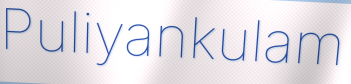
Puliyankulam